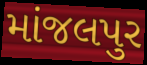
માંજલપુર